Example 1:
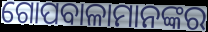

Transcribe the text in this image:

ଗୋପବାଳାମାନଙ୍କର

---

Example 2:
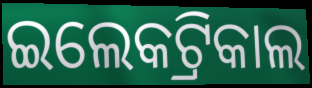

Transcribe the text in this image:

ଇଲେକଟ୍ରିକାଲ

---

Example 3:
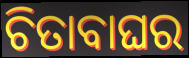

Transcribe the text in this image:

ଚିତାବାଘର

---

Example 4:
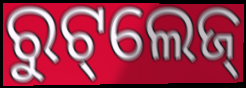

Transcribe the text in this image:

ରୁଟ୍‌ଲେଜ୍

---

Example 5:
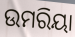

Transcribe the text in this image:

ଉମରିୟା